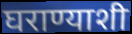
घराण्याशी